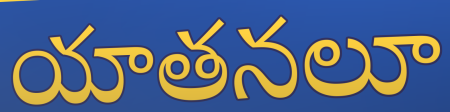
యాతనలూ